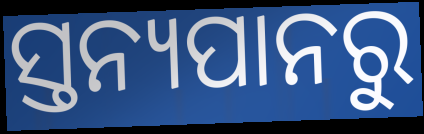
ସ୍ତନ୍ୟପାନରୁ